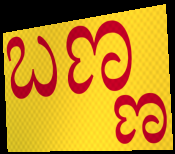
ಬಣ್ಣ